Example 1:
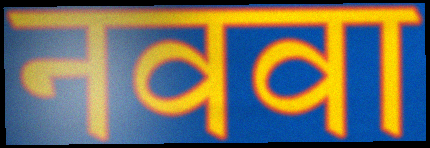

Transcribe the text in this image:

नववा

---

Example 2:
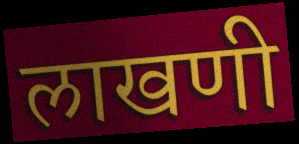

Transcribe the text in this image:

लाखणी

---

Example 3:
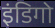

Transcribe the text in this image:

इंडिगो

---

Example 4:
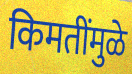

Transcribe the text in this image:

किमतींमुळे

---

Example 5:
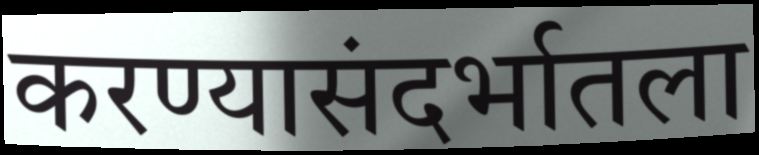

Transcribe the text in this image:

करण्यासंदर्भातला